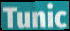
Tunic